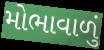
મોભાવાળું